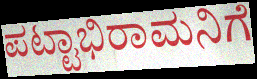
ಪಟ್ಟಾಭಿರಾಮನಿಗೆ